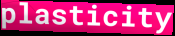
plasticity